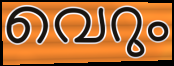
വെറും